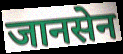
जानसेन